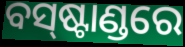
ବସ୍‌ଷ୍ଟାଣ୍ଡରେ